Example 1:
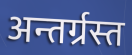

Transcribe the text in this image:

अन्तर्ग्रस्त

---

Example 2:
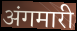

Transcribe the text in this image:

अंगमारी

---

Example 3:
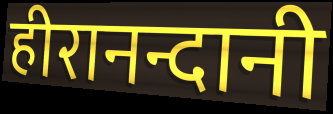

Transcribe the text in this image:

हीरानन्दानी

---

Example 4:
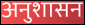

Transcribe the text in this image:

अनुशासन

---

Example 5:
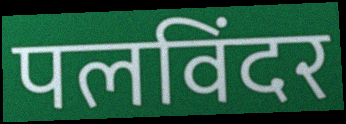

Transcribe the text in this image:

पलविंदर